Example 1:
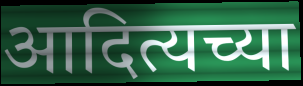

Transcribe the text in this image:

आदित्यच्या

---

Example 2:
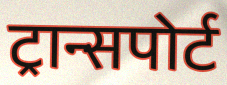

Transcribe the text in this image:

ट्रान्सपोर्ट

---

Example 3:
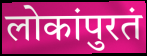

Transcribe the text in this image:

लोकांपुरतं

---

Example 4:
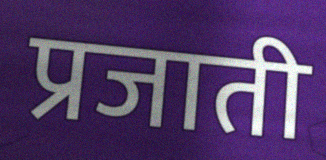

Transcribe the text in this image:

प्रजाती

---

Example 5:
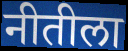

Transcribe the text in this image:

नीतीला